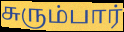
சுரும்பார்